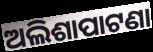
ଅଲିଶାପାଟଣା